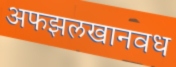
अफझलखानवध